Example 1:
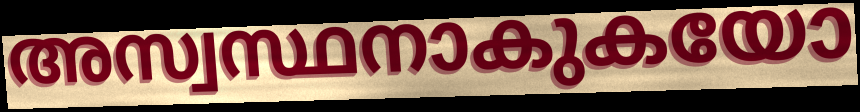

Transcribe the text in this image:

അസ്വസ്ഥനാകുകയോ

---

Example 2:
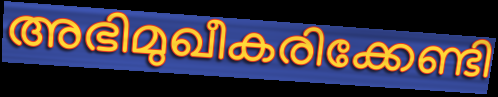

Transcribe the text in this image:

അഭിമുഖീകരിക്കേണ്ടി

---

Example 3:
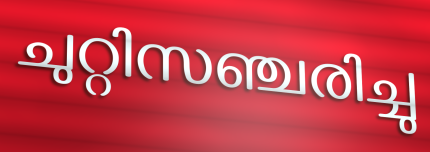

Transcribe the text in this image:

ചുറ്റിസഞ്ചരിച്ചു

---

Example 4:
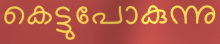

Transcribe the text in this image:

കെട്ടുപോകുന്നു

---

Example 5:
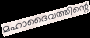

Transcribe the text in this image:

മഹാദൈവത്തിന്റെ